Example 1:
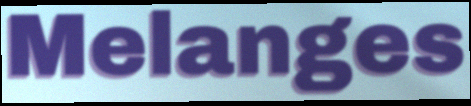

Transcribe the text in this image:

Melanges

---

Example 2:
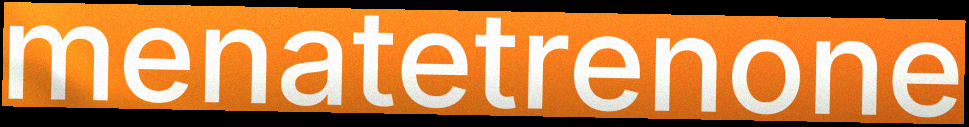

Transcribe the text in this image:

menatetrenone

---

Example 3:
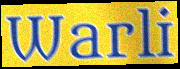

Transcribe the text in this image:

Warli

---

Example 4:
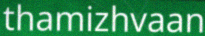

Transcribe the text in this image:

thamizhvaan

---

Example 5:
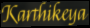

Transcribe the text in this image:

Karthikeya